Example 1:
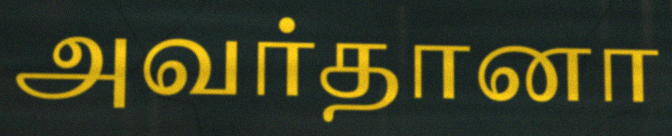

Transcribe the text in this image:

அவர்தானா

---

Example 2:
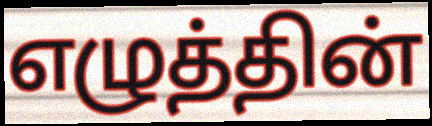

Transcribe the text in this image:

எழுத்தின்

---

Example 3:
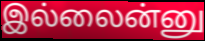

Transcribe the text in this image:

இல்லைன்னு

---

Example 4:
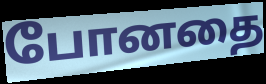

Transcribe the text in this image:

போனதை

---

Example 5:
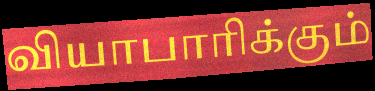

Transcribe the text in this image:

வியாபாரிக்கும்